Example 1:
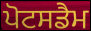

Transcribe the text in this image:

ਪੋਟਸਡੈਮ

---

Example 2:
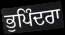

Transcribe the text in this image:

ਭੁਪਿੰਦਰਾ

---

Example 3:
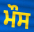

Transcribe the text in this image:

ਮੌਸ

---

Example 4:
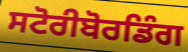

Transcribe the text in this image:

ਸਟੋਰੀਬੋਰਡਿੰਗ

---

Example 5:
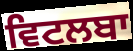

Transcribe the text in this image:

ਵਿਟਲਬਾ